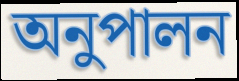
অনুপালন